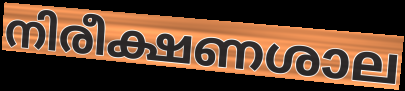
നിരീക്ഷണശാല